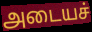
அடையச்